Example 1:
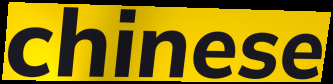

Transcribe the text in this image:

chinese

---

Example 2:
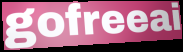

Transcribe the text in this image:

gofreeai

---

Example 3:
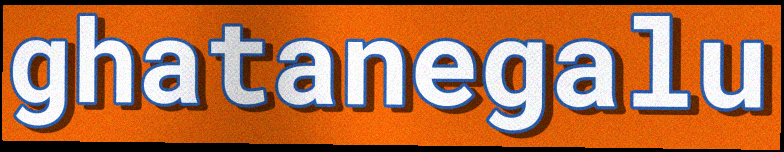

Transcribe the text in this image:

ghatanegalu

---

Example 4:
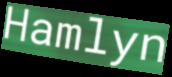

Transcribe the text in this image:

Hamlyn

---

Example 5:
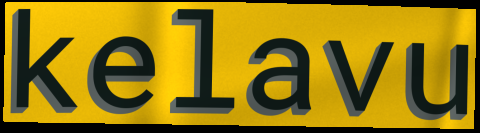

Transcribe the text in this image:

kelavu